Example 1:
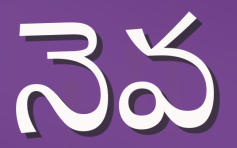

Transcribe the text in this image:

నెవ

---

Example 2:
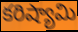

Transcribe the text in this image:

కరిష్యామి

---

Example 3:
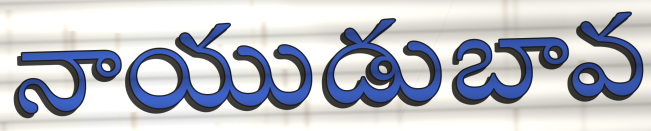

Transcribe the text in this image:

నాయుడుబావ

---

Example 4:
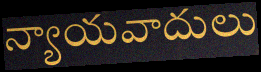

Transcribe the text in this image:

న్యాయవాదులు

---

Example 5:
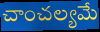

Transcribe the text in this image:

చాంచల్యమే